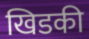
खिडकी